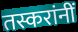
तस्करांनीं